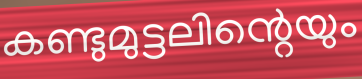
കണ്ടുമുട്ടലിന്റെയും